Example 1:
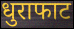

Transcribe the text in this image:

धुराफाट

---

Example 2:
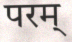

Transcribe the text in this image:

परम्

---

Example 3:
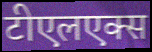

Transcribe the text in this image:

टीएलएक्स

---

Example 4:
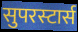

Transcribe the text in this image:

सुपरस्‍टार्स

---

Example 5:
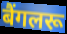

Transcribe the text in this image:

बैंगलरू